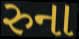
રુના